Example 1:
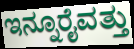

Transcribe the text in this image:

ಇನ್ನೂರೈವತ್ತು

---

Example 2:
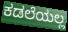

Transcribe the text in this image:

ಕಡಲೆಯಲ್ಲ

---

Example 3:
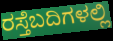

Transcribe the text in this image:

ರಸ್ತೆಬದಿಗಳಲ್ಲಿ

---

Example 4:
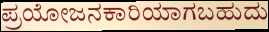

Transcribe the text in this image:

ಪ್ರಯೋಜನಕಾರಿಯಾಗಬಹುದು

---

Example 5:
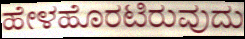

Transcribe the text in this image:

ಹೇಳಹೊರಟಿರುವುದು